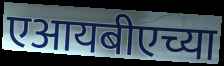
एआयबीएच्या